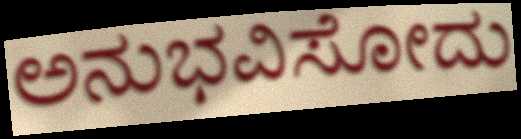
ಅನುಭವಿಸೋದು